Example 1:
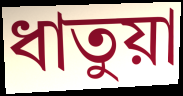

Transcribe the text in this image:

ধাতুয়া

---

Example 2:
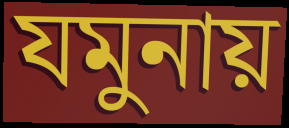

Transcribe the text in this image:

যমুনায়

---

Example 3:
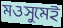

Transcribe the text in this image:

মওসুমেই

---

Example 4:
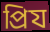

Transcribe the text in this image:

প্রিয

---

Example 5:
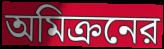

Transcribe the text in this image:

অমিক্রনের